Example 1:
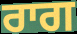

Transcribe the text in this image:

ਰਾਗ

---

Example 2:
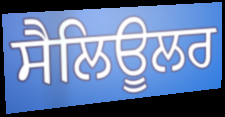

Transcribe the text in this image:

ਸੈਲਿਊਲਰ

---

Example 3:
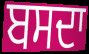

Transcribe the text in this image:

ਬਸਦਾ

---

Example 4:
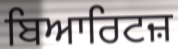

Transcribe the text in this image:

ਬਿਆਰਿਟਜ਼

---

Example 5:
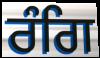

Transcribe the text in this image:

ਰੰਗਿ